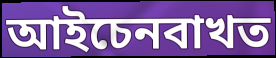
আইচেনবাখত